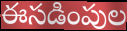
ఈసడింపుల